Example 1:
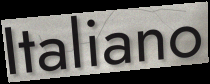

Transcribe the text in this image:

Italiano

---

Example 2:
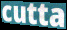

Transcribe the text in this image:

cutta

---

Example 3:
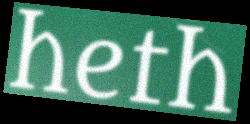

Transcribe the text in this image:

heth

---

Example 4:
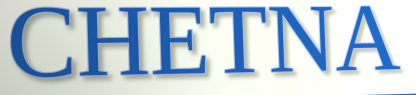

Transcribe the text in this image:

CHETNA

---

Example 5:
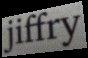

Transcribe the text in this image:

jiffry